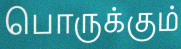
பொருக்கும்